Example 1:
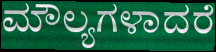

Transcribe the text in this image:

ಮೌಲ್ಯಗಳಾದರೆ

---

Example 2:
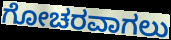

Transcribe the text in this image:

ಗೋಚರವಾಗಲು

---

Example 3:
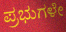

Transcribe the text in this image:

ಪ್ರಭುಗಳೇ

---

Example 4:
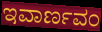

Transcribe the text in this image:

ಇವಾರ್ಣವಂ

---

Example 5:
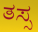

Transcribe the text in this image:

ತಸ್ಸ